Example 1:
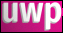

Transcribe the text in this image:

uwp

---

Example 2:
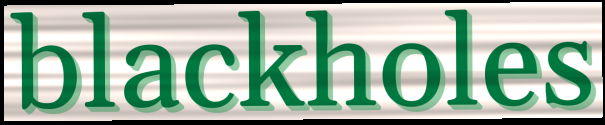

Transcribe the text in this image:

blackholes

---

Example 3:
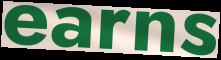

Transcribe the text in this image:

earns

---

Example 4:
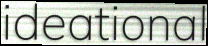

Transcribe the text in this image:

ideational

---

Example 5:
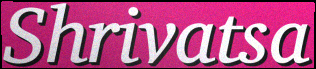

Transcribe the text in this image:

Shrivatsa